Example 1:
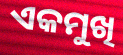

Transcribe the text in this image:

ଏକମୁଖି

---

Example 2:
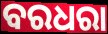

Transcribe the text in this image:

ବରଧରା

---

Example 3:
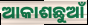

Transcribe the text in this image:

ଆକାଶଛୁଆଁ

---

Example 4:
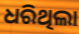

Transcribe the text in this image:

ଧରିଥିଲା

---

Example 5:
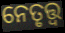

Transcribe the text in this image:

ନେତୃତ୍ତ୍ୱ